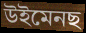
উইমেনছ